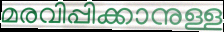
മരവിപ്പിക്കാനുള്ള